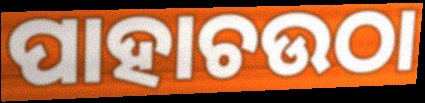
ପାହାଚଉଠା